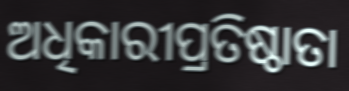
ଅଧିକାରୀପ୍ରତିଷ୍ଠାତା